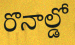
రొనాల్డో